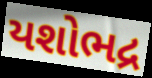
યશોભદ્ર